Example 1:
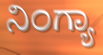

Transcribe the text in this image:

ನಿಂಗ್ಯಾ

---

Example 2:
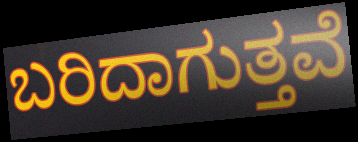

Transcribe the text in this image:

ಬರಿದಾಗುತ್ತವೆ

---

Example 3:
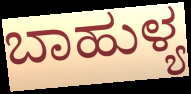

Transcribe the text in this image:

ಬಾಹುಳ್ಯ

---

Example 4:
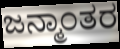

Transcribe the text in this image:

ಜನ್ಮಾಂತರ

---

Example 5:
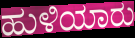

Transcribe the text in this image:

ಹುಳಿಯಾರು